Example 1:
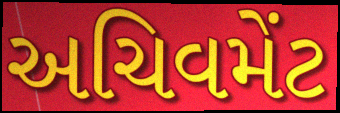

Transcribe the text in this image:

અચિવમેંટ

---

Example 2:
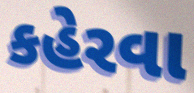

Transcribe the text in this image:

કહેરવા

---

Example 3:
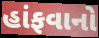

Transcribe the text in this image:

હાંફવાનો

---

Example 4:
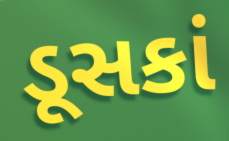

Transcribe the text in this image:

ડૂસકાં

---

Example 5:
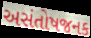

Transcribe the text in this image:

અસંતોષજનક